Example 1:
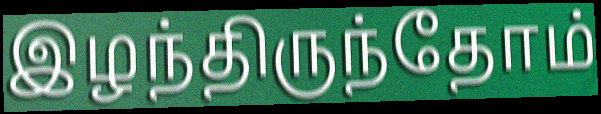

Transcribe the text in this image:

இழந்திருந்தோம்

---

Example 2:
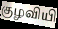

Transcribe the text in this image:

குழவியி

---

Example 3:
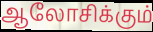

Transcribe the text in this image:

ஆலோசிக்கும்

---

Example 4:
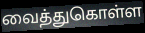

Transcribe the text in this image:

வைத்துகொள்ள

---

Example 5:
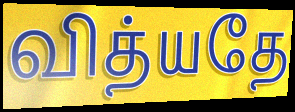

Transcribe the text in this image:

வித்யதே